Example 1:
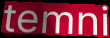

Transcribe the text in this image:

temni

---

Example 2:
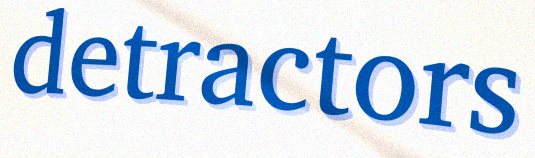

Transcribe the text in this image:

detractors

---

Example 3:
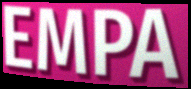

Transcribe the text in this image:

EMPA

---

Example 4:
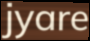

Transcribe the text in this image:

jyare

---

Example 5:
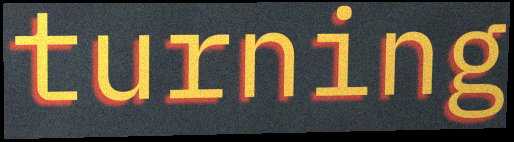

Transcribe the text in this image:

turning